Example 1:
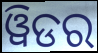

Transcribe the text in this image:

ୱିଡର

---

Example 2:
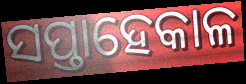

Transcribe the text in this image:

ସପ୍ତାହେକାଳ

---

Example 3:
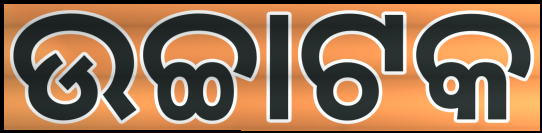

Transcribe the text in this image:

ଉଚ୍ଚାଟକ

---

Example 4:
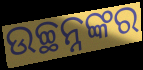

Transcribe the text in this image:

ଉଚ୍ଛନ୍ନଙ୍କର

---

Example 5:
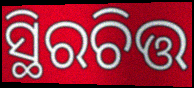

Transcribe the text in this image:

ସ୍ଥିରଚିତ୍ତ